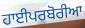
ਹਾਈਪਰਬੋਰੀਆ